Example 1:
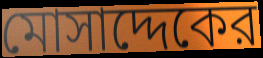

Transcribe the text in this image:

মোসাদ্দেকের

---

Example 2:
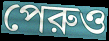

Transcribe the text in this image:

পেরুও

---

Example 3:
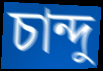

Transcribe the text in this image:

চান্দু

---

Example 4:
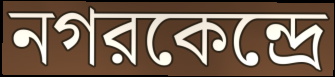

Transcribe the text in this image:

নগরকেন্দ্রে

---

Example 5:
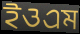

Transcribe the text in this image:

ইওএম